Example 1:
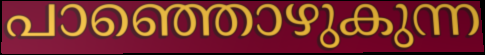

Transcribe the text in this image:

പാഞ്ഞൊഴുകുന്ന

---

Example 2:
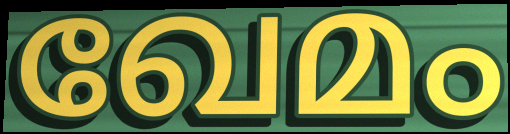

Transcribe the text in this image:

ഖേമം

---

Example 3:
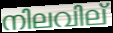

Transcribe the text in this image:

നിലവില്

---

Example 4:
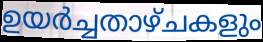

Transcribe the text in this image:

ഉയർച്ചതാഴ്ചകളും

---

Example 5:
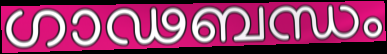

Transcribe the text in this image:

ഗാഢബന്ധം